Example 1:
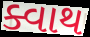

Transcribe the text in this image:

ક્વાથ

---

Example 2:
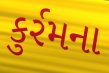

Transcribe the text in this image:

કુર્રમના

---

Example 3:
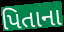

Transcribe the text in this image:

પિતાના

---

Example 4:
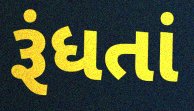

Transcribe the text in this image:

રૂંધતાં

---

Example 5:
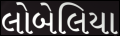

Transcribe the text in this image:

લોબેલિયા